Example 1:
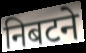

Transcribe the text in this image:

निबटने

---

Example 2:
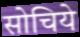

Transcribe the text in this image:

सोचिये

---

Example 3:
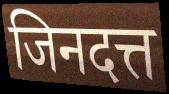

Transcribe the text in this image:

जिनदत्त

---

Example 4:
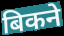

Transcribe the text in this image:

बिकने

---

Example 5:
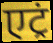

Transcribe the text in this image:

एट्रं